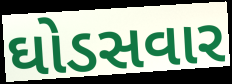
ઘોડસવાર